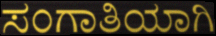
ಸಂಗಾತಿಯಾಗಿ